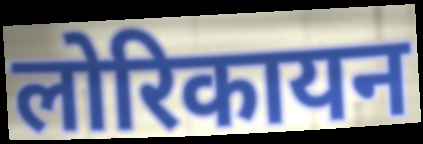
लोरिकायन